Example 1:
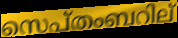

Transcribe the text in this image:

സെപ്തംബറില്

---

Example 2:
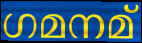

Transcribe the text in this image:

ഗമനമ്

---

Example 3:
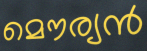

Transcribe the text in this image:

മൌര്യൻ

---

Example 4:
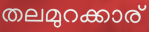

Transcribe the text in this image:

തലമുറക്കാര്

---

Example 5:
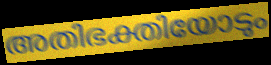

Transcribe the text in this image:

അതിഭക്തിയോടും